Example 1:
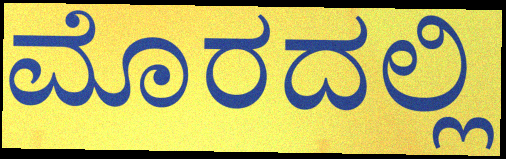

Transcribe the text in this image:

ಮೊರದಲ್ಲಿ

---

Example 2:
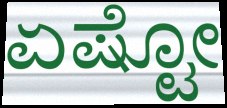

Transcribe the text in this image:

ಏಷ್ಟೋ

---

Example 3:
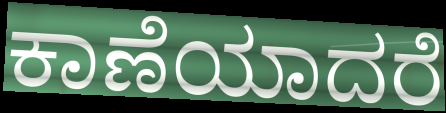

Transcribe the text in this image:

ಕಾಣೆಯಾದರೆ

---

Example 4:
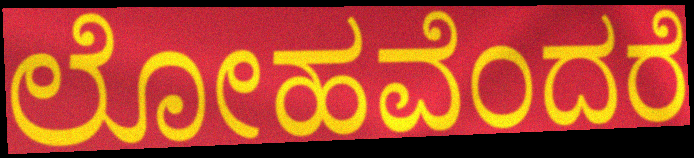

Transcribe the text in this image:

ಲೋಹವೆಂದರೆ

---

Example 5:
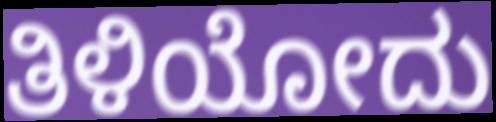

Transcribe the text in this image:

ತಿಳಿಯೋದು